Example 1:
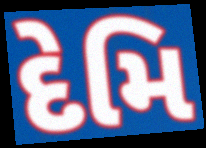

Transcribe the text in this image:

દેમિ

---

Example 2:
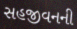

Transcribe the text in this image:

સહજીવનની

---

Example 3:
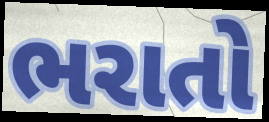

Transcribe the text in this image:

ભરાતો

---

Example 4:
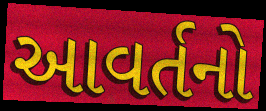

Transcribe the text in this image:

આવર્તનો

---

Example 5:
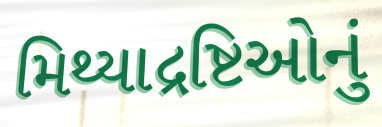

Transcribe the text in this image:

મિથ્યાદ્રષ્ટિઓનું